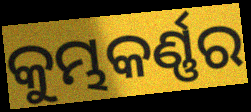
କୁମ୍ଭକର୍ଣ୍ଣର